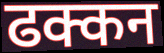
ढक्कन